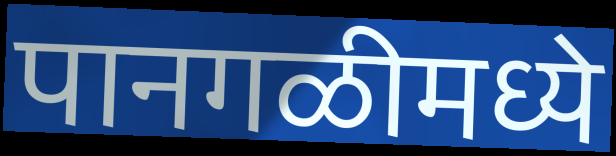
पानगळीमध्ये